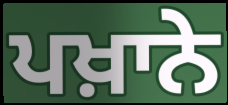
ਪਖ਼ਾਨੇ